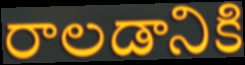
రాలడానికి